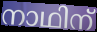
നാഥിന്